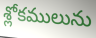
శ్లోకములును